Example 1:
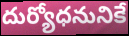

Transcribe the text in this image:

దుర్యోధనునికే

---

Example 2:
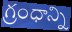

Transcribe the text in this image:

గ్రంధాన్ని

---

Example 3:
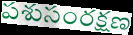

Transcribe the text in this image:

పశుసంరక్షణ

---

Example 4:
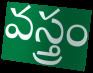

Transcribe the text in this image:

వస్త్రం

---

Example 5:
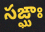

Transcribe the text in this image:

సఙ్ఘాః